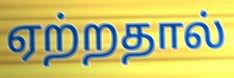
ஏற்றதால்